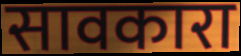
सावकारा